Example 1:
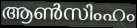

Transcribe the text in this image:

ആൺസിംഹം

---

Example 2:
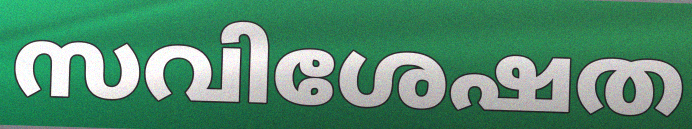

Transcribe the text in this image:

സവിശേഷത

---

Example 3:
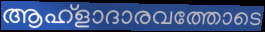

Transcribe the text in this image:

ആഹ്ളാദാരവത്തോടെ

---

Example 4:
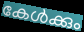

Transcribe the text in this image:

കേൾക്കും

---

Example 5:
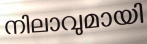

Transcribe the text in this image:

നിലാവുമായി